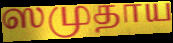
ஸமுதாய